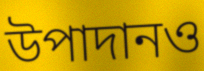
উপাদানও